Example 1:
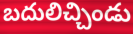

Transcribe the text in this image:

బదులిచ్చిండు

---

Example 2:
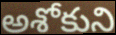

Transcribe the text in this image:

అశోకుని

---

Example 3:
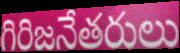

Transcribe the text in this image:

గిరిజనేతరులు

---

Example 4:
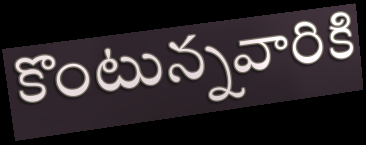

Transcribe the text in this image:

కొంటున్నవారికి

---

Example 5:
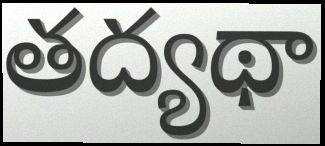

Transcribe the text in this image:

తద్యథా